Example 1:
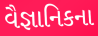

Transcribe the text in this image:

વૈજ્ઞાનિકના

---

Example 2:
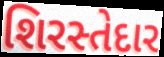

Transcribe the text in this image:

શિરસ્તેદાર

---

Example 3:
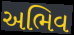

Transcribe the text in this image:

અભિવ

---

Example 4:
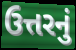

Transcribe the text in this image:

ઉત્તરનું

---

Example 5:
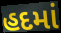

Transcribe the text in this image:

હદમાં